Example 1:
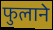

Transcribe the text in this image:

फुलाने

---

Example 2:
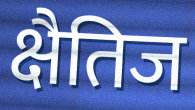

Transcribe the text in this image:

क्षैतिज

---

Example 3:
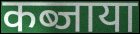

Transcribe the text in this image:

कब्जाया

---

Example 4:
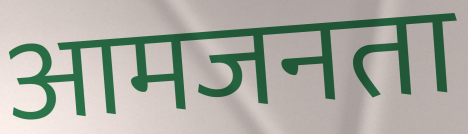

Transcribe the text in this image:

आमजनता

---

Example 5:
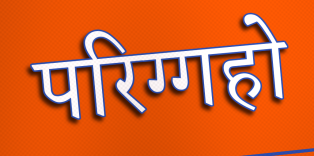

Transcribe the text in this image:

परिग्गहो